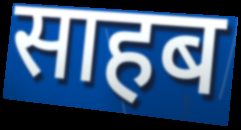
साहब